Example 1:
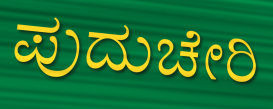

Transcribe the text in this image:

ಪುದುಚೇರಿ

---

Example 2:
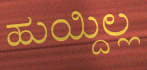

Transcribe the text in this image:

ಹುಯ್ದಿಲ್ಲ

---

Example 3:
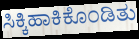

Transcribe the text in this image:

ಸಿಕ್ಕಿಹಾಕಿಕೊಂಡಿತು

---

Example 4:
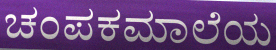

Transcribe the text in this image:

ಚಂಪಕಮಾಲೆಯ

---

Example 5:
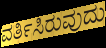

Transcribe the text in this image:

ವರ್ತಿಸಿರುವುದು